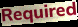
Required